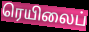
ரெயிலைப்